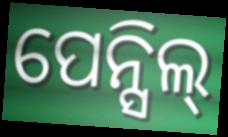
ପେନ୍ସିଲ୍